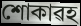
শোকাৱহ